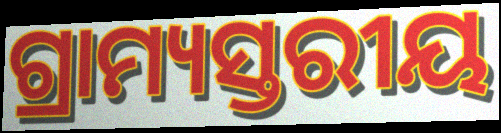
ଗ୍ରାମ୍ୟସ୍ତରୀୟ